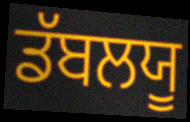
ਡੱਬਲਯੂ